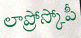
లాప్రోస్కోపీ